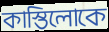
কাস্তিলোকে